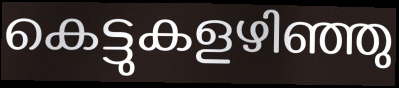
കെട്ടുകളഴിഞ്ഞു